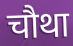
चौथा